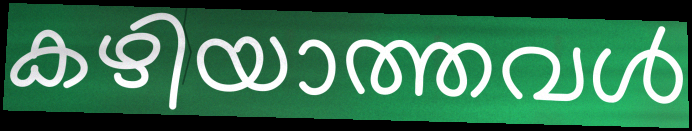
കഴിയാത്തവൾ